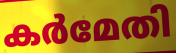
കർമേതി